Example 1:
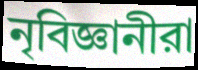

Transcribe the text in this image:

নৃবিজ্ঞানীরা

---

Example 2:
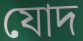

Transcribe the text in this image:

যোদ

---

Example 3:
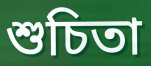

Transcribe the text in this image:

শুচিতা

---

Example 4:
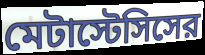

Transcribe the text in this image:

মেটাস্টেসিসের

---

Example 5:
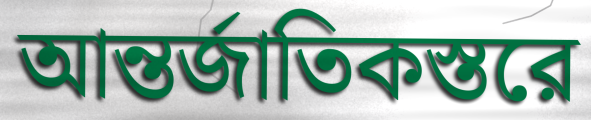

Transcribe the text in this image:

আন্তর্জাতিকস্তরে